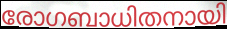
രോഗബാധിതനായി